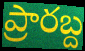
ప్రారబ్ద